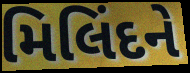
મિલિંદને